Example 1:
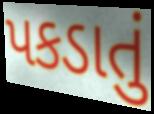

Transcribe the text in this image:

પકડાતું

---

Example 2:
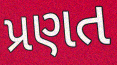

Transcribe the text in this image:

પ્રણત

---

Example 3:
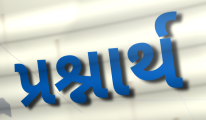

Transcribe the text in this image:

પ્રશ્નાર્થ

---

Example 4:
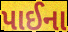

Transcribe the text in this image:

પાઈના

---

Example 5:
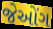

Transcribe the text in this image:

જેઓંગ